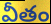
వీతం